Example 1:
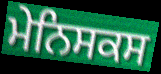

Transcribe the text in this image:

ਮੇਨਿਸਕਸ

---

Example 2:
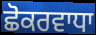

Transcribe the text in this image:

ਛੋਕਰਵਾਧਾ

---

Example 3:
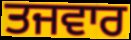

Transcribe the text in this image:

ਤਜਵਾਰ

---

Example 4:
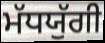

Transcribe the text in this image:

ਮੱਧਯੁੱਗੀ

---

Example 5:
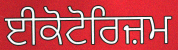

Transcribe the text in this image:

ਈਕੋਟੋਰਿਜ਼ਮ